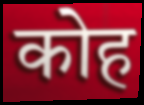
कोह